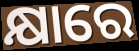
କ୍ଷାରେ